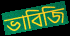
ভাবিজি